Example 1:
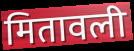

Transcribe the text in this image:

मितावली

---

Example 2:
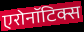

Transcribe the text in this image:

एरोनॉटिक्स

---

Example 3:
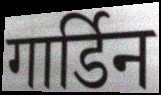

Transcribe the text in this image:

गार्डिन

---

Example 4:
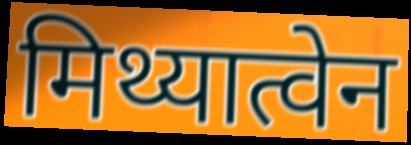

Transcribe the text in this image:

मिथ्यात्वेन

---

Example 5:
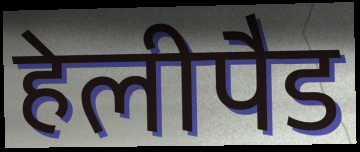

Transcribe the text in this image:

हेलीपैड